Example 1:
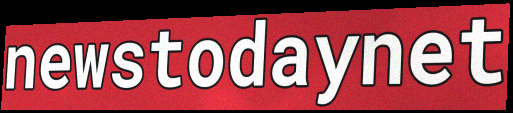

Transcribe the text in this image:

newstodaynet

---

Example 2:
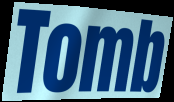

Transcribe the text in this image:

Tomb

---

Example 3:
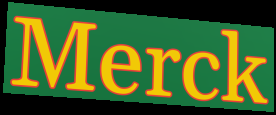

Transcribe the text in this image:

Merck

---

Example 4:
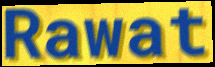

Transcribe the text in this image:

Rawat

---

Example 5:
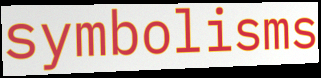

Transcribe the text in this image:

symbolisms